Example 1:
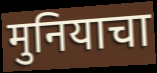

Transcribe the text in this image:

मुनियाचा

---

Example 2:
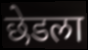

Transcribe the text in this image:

छेडला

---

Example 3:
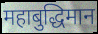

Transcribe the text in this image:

महाबुद्धिमान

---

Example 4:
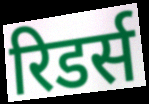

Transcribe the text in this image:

रिडर्स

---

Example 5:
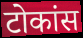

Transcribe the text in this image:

टोकांस